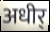
अधीर्